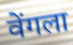
वेंगला